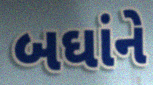
બઘાંને